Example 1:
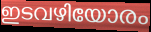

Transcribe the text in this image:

ഇടവഴിയോരം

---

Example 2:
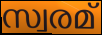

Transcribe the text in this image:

സ്വരമ്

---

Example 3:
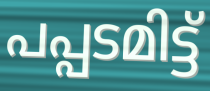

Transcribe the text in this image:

പപ്പടമിട്ട്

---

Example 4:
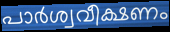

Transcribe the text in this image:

പാർശ്വവീക്ഷണം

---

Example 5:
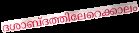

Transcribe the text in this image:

ദശാബ്ദത്തിലേറെക്കാലം